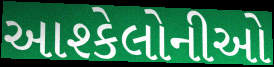
આશ્કેલોનીઓ